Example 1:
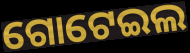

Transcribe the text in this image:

ଗୋଟେଇଲ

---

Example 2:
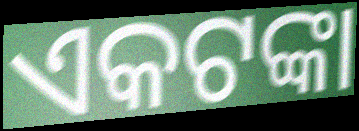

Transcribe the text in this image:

ଏକଟଙ୍କା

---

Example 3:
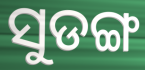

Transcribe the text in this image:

ସୁଡଙ୍ଗ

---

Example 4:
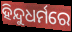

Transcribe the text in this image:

ହିନ୍ଦୁଧର୍ମରେ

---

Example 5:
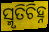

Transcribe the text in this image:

ସ୍ମୃତିଚିହ୍ନ